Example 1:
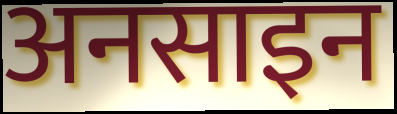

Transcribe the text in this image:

अनसाइन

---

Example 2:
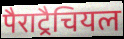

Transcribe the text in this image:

पैराट्रैचियल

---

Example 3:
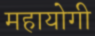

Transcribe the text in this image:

महायोगी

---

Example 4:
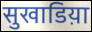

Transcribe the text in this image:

सुखाडिय़ा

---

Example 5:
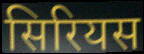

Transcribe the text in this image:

सिरियस